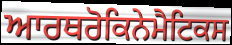
ਆਰਥਰੋਕਿਨੇਮੈਟਿਕਸ